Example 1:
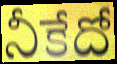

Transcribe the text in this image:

నీకేదో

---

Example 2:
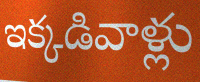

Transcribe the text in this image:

ఇక్కడివాళ్లు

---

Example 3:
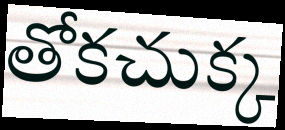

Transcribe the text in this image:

తోకచుక్క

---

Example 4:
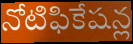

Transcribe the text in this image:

నోటిఫికేషన్ల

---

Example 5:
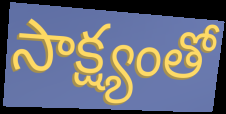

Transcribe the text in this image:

సాక్ష్యంతో